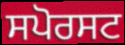
ਸਪੋਰਸਟ